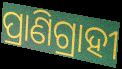
ପ୍ରାଣିଗ୍ରାହୀ